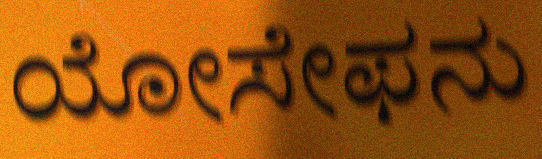
ಯೋಸೇಫನು